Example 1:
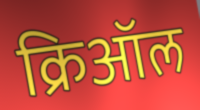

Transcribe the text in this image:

क्रिऑल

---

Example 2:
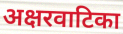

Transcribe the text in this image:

अक्षरवाटिका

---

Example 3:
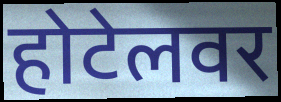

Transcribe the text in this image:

होटेलवर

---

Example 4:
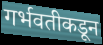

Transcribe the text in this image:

गर्भवतीकडून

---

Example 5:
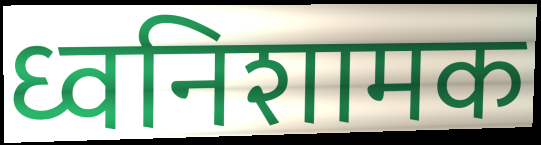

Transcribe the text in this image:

ध्वनिशामक